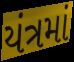
યંત્રમાં